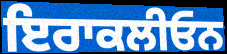
ਇਰਾਕਲੀਓਨ